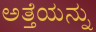
ಅತ್ತೆಯನ್ನು